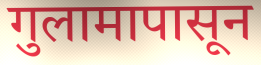
गुलामापासून